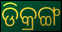
ଡିକ୍ରଙ୍ଗ